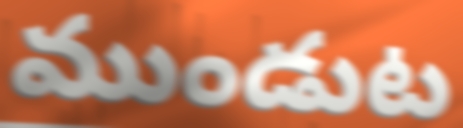
ముండుట